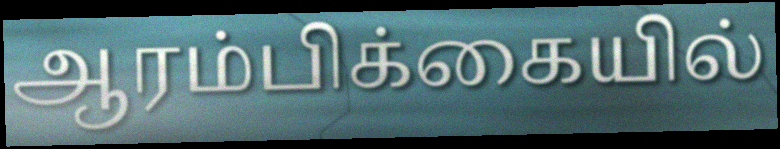
ஆரம்பிக்கையில்